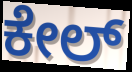
ಕೇಲ್